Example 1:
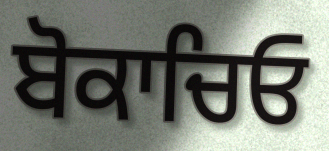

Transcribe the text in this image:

ਬੋਕਾਚਿਓ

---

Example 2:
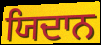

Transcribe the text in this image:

ਯਿਦਾਨ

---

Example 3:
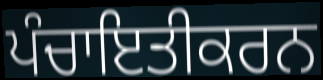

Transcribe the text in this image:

ਪੰਚਾਇਤੀਕਰਨ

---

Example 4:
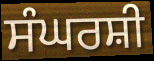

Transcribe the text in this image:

ਸੰਘਰਸ਼ੀ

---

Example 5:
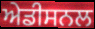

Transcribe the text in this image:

ਅੇਡੀਸਨਲ